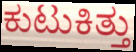
ಕುಟುಕಿತ್ತು